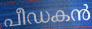
പീഡകൻ